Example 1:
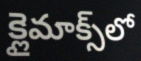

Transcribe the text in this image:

క్లైమాక్స్‌లో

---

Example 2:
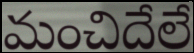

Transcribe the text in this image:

మంచిదేలే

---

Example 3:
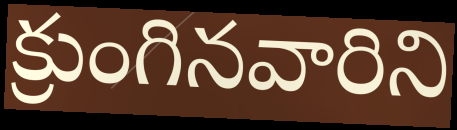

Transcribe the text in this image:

క్రుంగినవారిని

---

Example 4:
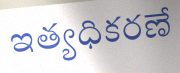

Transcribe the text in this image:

ఇత్యధికరణే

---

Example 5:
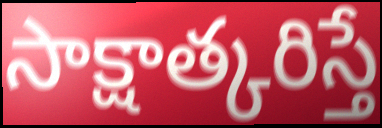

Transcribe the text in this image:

సాక్షాత్కరిస్తే